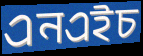
এনএইচ